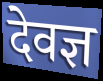
देवज्ञ